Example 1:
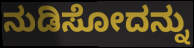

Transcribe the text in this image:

ನುಡಿಸೋದನ್ನು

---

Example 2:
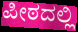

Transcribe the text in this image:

ಪೀಠದಲ್ಲಿ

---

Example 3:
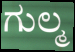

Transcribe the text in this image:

ಗುಲ್ಮ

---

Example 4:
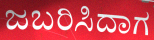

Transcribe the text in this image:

ಜಬರಿಸಿದಾಗ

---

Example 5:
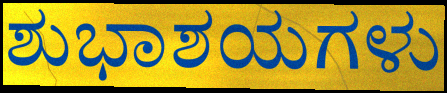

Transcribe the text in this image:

ಶುಭಾಶಯಗಳು